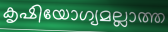
കൃഷിയോഗ്യമല്ലാത്ത